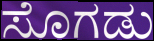
ಸೊಗಡು